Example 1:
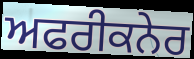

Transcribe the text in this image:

ਅਫਰੀਕਨੇਰ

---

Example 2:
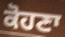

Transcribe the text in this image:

ਕੋਹਣਾ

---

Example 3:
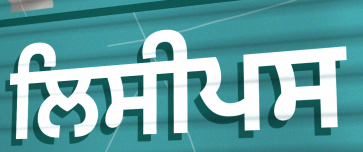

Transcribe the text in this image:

ਲਿਸੀਪਸ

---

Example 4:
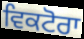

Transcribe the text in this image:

ਵਿਕਟੋਰਾ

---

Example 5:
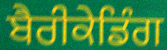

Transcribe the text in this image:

ਬੈਰੀਕੇਡਿੰਗ